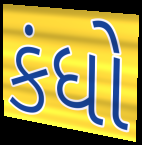
કંધો